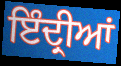
ਇੰਦ੍ਰੀਆਂ